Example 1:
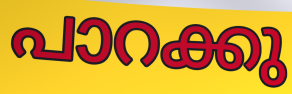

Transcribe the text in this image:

പാറക്കു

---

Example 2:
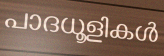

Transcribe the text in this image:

പാദധൂളികൾ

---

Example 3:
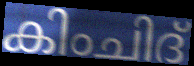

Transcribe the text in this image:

കിംചിദ്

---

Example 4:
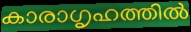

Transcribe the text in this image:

കാരാഗൃഹത്തിൽ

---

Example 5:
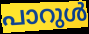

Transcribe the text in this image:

പാറുൾ